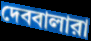
দেববালারা